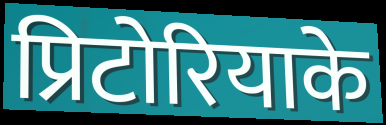
प्रिटोरियाके